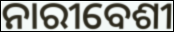
ନାରୀବେଶୀ